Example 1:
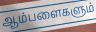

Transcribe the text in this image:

ஆம்பளைகளும்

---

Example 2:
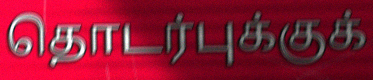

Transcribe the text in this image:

தொடர்புக்குக்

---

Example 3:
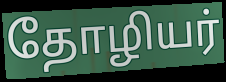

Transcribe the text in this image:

தோழியர்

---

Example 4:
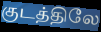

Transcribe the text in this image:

குடத்திலே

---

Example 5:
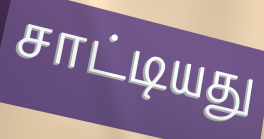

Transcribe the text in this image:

சாட்டியது